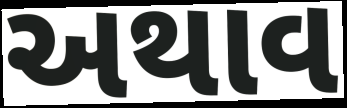
અથાવ